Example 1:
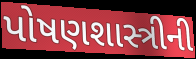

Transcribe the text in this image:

પોષણશાસ્ત્રીની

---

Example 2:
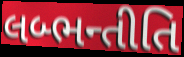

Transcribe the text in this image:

લબ્ભન્તીતિ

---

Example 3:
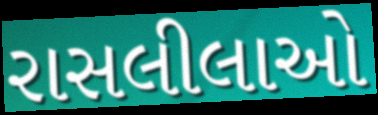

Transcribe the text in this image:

રાસલીલાઓ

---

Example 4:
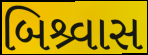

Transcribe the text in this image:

બિશ્ર્વાસ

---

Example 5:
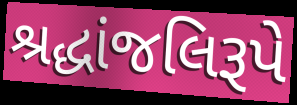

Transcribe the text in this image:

શ્રદ્ધાંજલિરૂપે